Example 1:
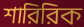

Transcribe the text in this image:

শারিরিক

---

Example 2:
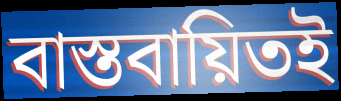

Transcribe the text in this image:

বাস্তবায়িতই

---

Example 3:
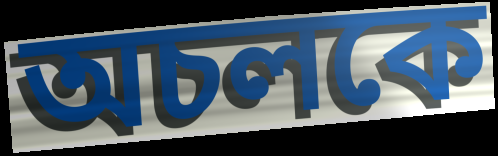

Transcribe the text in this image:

অচলকে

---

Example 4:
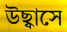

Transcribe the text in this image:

উছ্বাসে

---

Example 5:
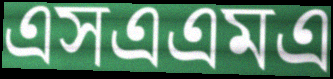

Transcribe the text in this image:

এসএএমএ